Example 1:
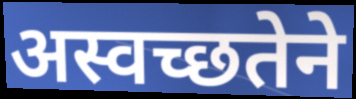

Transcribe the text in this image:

अस्वच्छतेने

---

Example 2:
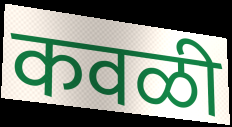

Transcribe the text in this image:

कवळी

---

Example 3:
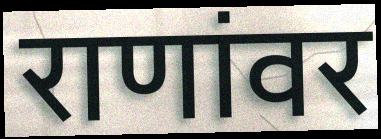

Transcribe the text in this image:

राणांवर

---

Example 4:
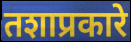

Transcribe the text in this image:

तशाप्रकारे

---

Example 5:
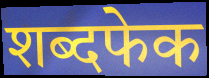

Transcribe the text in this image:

शब्दफेक